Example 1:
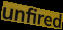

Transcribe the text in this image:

unfired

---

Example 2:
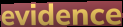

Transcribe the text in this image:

evidence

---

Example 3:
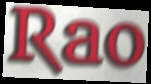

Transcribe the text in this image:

Rao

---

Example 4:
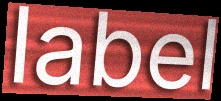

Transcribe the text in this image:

label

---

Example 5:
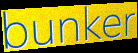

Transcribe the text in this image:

bunker